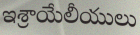
ఇశ్రాయేలీయులు